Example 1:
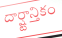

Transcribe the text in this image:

దార్ష్టాన్తికం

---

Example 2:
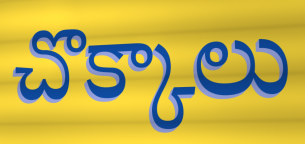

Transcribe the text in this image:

చొక్కాలు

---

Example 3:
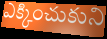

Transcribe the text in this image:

ఎక్కించుకుని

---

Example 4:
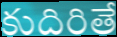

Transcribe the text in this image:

కుదిరితే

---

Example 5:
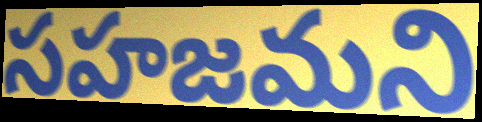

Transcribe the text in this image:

సహజమని